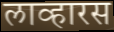
लाव्हारस